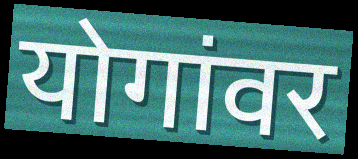
योगांवर